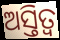
ଅସ୍ତିତ୍ଵ